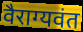
वैराग्यवंत